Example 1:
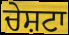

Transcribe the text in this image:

ਚੇਸ਼ਟਾ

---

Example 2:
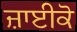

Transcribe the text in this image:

ਜ਼ਾਈਕੋ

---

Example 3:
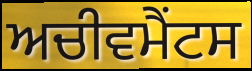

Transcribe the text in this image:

ਅਚੀਵਮੈਂਟਸ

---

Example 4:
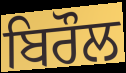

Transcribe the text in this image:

ਬਿਰੌਲ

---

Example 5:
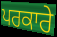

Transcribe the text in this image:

ਪਰਕਾਰੇ